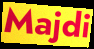
Majdi